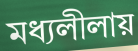
মধ্যলীলায়